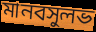
মানবসুলভ